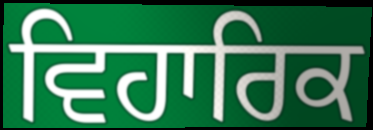
ਵਿਹਾਰਿਕ